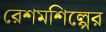
রেশমশিল্পের